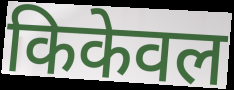
किकेवल